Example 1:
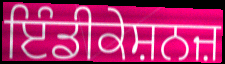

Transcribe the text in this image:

ਇੰਡੀਕੇਸ਼ਨਜ਼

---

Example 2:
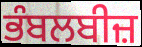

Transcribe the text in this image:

ਭੰਬਲਬੀਜ਼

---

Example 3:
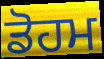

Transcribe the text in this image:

ਡੋਹਮ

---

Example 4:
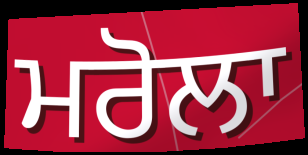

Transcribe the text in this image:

ਮਰੋਲਾ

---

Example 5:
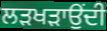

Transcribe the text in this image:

ਲੜਖੜਾਉਂਦੀ